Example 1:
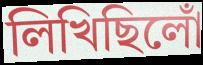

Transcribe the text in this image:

লিখিছিলোঁ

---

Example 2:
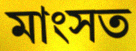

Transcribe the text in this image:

মাংসত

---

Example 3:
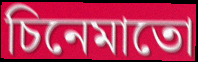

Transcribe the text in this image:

চিনেমাতো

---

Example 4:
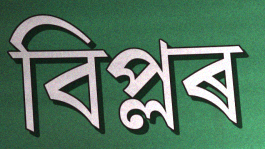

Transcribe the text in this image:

বিপ্লৰ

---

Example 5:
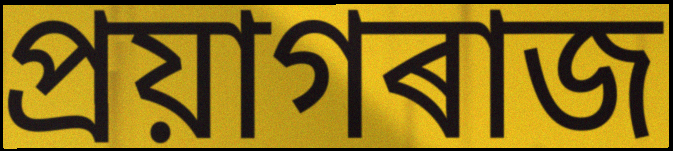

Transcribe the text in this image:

প্ৰয়াগৰাজ